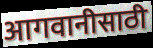
आगवानीसाठी